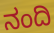
ನಂದಿ